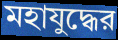
মহাযুদ্ধের